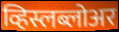
व्हिस्लब्लोअर